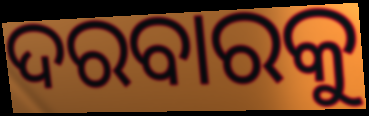
ଦରବାରକୁ